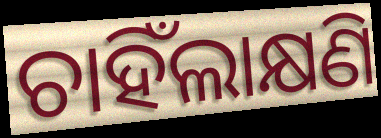
ଚାହିଁଲାକ୍ଷଣି